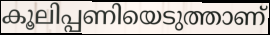
കൂലിപ്പണിയെടുത്താണ്